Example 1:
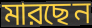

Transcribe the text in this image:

মারছেন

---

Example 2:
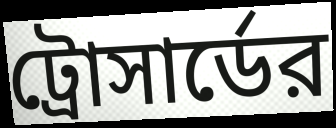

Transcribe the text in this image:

ট্রোসার্ডের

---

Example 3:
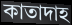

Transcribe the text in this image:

কাতাদাহ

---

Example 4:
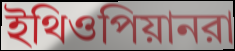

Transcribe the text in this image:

ইথিওপিয়ানরা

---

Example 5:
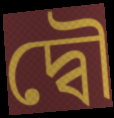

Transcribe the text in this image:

দ্বৌ